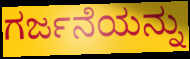
ಗರ್ಜನೆಯನ್ನು